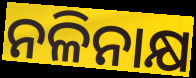
ନଳିନାକ୍ଷ